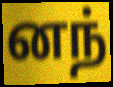
னந்